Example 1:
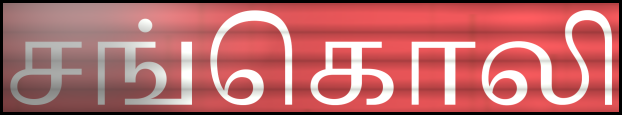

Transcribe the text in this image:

சங்கொலி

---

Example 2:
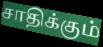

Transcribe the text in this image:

சாதிக்கும்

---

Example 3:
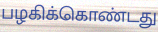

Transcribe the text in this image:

பழகிக்கொண்டது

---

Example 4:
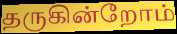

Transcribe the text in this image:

தருகின்றோம்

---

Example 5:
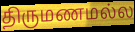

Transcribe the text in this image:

திருமணமல்ல